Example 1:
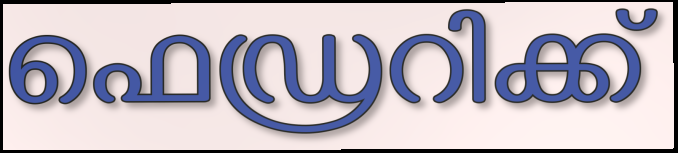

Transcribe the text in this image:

ഫെഡ്രറിക്ക്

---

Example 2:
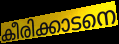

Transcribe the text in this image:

കീരിക്കാടനെ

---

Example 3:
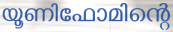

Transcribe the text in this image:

യൂണിഫോമിന്റെ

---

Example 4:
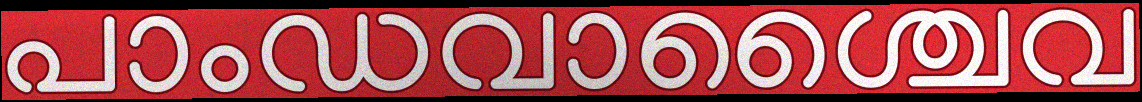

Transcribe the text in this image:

പാംഡവാശ്ചൈവ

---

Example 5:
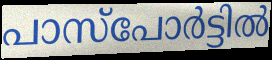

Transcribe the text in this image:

പാസ്പോർട്ടിൽ